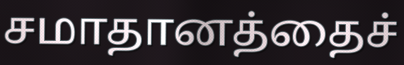
சமாதானத்தைச்